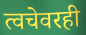
त्वचेवरही